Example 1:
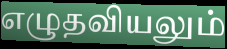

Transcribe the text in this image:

எழுதவியலும்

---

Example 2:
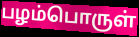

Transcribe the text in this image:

பழம்பொருள்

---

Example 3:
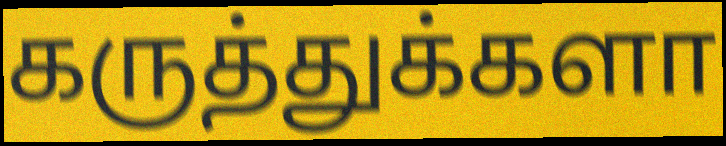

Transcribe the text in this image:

கருத்துக்களா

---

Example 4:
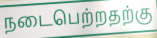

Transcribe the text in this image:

நடைபெற்றதற்கு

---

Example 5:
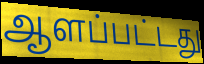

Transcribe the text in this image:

ஆளப்பட்டது